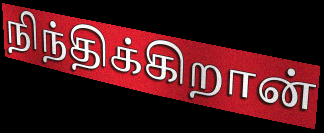
நிந்திக்கிறான்